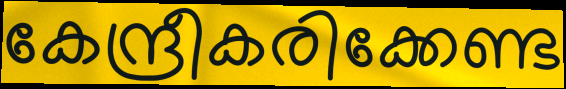
കേന്ദ്രീകരിക്കേണ്ട